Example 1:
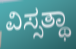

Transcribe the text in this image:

ವಿಸ್ಸತ್ಥಾ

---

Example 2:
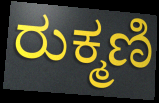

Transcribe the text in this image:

ರುಕ್ಮಣಿ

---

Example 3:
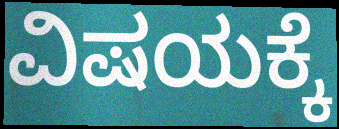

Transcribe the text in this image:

ವಿಷಯಕ್ಕೆ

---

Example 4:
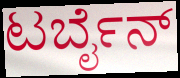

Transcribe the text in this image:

ಟರ್ಬೈನ್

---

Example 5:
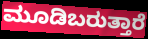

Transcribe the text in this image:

ಮೂಡಿಬರುತ್ತಾರೆ